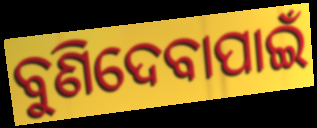
ବୁଣିଦେବାପାଇଁ